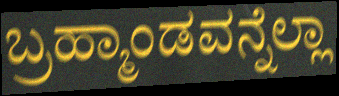
ಬ್ರಹ್ಮಾಂಡವನ್ನೆಲ್ಲಾ